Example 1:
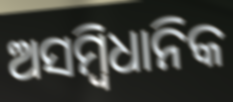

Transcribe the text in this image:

ଅସମ୍ବିଧାନିକ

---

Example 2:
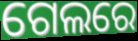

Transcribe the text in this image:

ଗେଲରେ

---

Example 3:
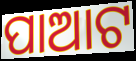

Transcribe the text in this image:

ପାଆଟ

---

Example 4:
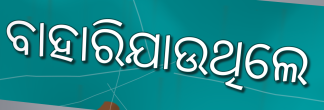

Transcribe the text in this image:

ବାହାରିଯାଉଥିଲେ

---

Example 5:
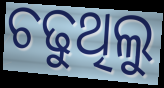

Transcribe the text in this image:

ଚଢୁଥିଲୁ